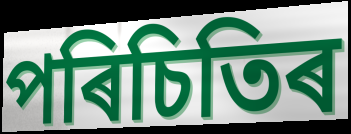
পৰিচিতিৰ